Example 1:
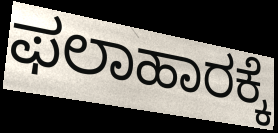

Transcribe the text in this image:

ಫಲಾಹಾರಕ್ಕೆ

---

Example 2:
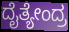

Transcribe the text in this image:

ದೈತ್ಯೇಂದ್ರ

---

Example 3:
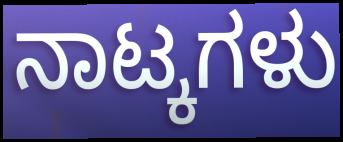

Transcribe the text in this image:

ನಾಟ್ಕಗಳು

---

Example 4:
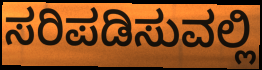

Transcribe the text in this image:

ಸರಿಪಡಿಸುವಲ್ಲಿ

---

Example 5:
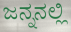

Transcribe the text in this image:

ಜನ್ನನಲ್ಲಿ